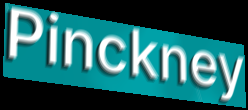
Pinckney